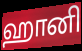
ஹானி